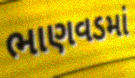
ભાણવડમાં